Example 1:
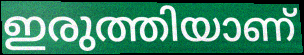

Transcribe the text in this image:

ഇരുത്തിയാണ്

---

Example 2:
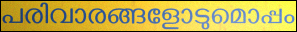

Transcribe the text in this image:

പരിവാരങ്ങളോടുമൊപ്പം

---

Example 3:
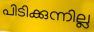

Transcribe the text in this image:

പിടിക്കുന്നില്ല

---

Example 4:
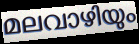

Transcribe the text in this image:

മലവാഴിയും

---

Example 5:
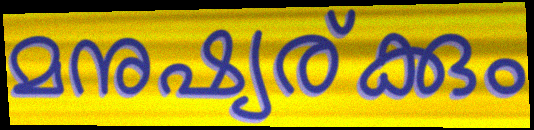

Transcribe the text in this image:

മനുഷ്യര്ക്കും